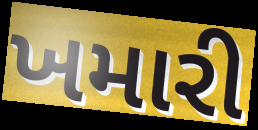
ખમારી